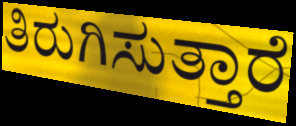
ತಿರುಗಿಸುತ್ತಾರೆ